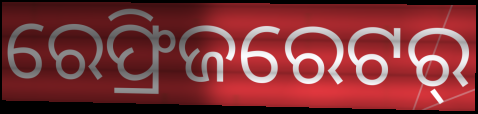
ରେଫ୍ରିଜରେଟର୍